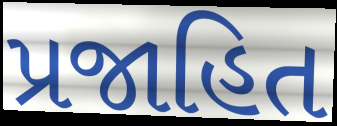
પ્રજાહિત